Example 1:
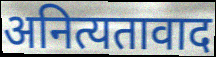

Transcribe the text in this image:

अनित्यतावाद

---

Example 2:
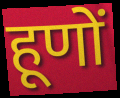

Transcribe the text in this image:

हूणों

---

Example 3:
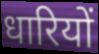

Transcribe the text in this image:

धारियों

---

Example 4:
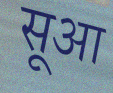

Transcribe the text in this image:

सूआ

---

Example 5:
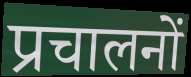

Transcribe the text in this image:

प्रचालनों